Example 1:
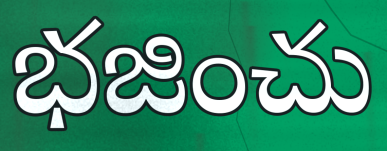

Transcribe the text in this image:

భజించు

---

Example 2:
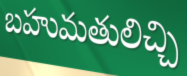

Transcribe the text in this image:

బహుమతులిచ్చి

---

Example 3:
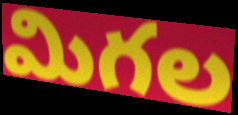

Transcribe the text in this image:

మిగల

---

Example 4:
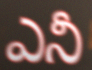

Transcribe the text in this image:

ఎనీ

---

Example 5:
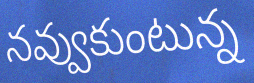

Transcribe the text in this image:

నవ్వుకుంటున్న